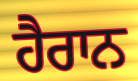
ਹੈਰਾਨ